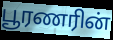
பூரணரின்